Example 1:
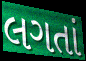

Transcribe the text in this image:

લગતાં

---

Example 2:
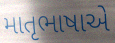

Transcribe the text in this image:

માતૃભાષાએ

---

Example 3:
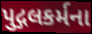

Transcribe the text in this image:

પુદ્ગલકર્મના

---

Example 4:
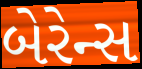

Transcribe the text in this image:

બેરેન્સ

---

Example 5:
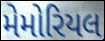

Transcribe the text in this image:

મેમોરિયલ